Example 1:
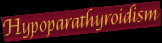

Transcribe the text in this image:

Hypoparathyroidism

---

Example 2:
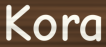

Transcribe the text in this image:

Kora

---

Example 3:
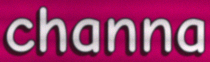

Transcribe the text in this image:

channa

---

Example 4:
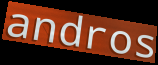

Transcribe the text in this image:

andros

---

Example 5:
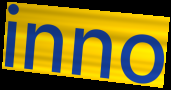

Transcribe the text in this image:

inno